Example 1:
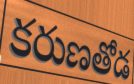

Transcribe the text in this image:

కరుణతోడ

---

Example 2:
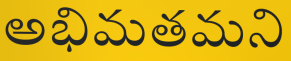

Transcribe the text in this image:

అభిమతమని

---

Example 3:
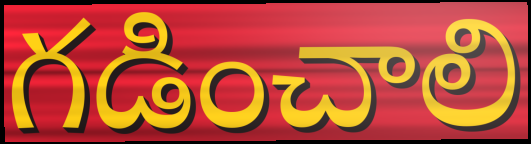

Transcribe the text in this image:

గడించాలి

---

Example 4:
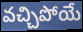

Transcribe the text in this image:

వచ్చిపోయే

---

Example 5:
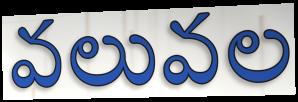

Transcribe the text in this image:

వలువల